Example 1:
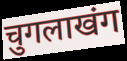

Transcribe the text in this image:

चुगलाखंग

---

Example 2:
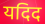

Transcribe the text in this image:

यदिद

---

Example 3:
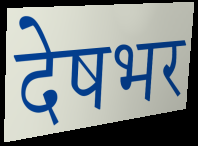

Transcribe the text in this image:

देषभर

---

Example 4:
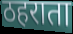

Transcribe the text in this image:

ठहराता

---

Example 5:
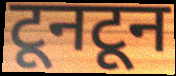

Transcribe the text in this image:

टूनटून